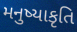
મનુષ્યાકૃતિ